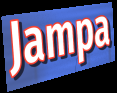
Jampa